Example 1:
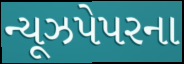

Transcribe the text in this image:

ન્યૂઝપેપરના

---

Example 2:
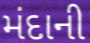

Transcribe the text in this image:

મંદાની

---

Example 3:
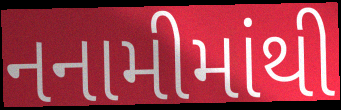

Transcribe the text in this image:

નનામીમાંથી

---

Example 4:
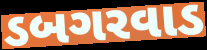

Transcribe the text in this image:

ડબગરવાડ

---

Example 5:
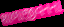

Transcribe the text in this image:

શાળાજીવનના